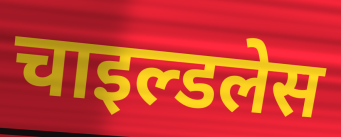
चाइल्डलेस